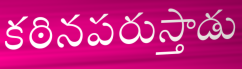
కఠినపరుస్తాడు